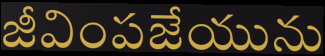
జీవింపజేయును